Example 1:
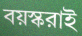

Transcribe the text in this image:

বয়স্করাই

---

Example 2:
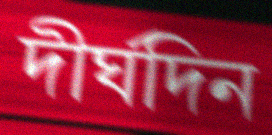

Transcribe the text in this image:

দীর্ঘদিন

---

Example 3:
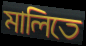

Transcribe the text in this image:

মালিতে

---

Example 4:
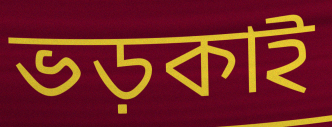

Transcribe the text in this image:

ভড়কাই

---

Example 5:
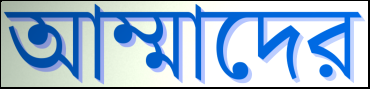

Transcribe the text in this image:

আম্মাদের